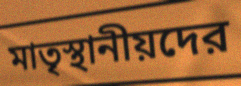
মাতৃস্থানীয়দের